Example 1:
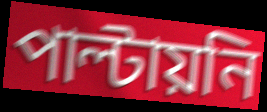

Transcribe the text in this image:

পাল্টায়নি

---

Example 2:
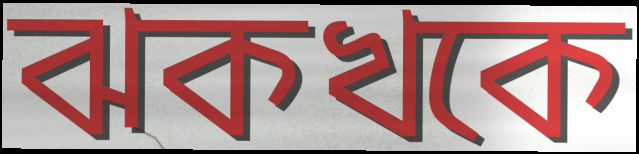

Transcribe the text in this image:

ঝকখকে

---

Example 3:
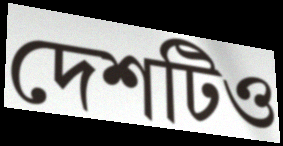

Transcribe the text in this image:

দেশটিও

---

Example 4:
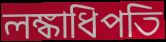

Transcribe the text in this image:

লঙ্কাধিপতি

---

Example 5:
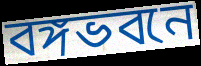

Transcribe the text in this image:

বঙ্গভবনে